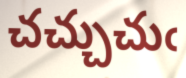
చచ్చుచుఁ